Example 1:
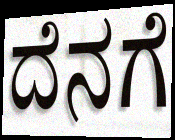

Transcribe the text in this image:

ದೆನಗೆ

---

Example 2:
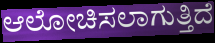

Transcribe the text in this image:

ಆಲೋಚಿಸಲಾಗುತ್ತಿದೆ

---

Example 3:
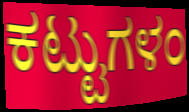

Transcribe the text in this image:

ಕಟ್ಟುಗಳಂ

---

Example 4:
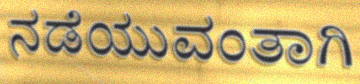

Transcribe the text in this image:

ನಡೆಯುವಂತಾಗಿ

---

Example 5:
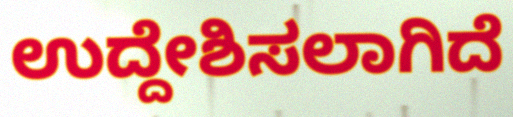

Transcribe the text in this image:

ಉದ್ದೇಶಿಸಲಾಗಿದೆ